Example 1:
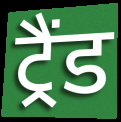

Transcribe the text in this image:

ट्रैंड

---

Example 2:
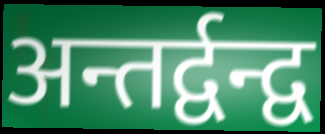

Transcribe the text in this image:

अन्तर्द्वन्द्व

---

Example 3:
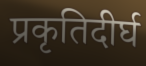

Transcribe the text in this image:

प्रकृतिदीर्घ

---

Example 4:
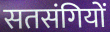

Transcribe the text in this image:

सतसंगियों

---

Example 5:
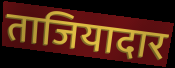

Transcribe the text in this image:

ताजियादार